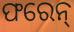
ଫରେନ୍